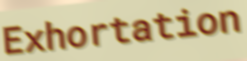
Exhortation